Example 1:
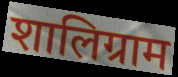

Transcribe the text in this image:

शालिग्राम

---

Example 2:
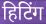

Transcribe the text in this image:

हिटिंग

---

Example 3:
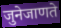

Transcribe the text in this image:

जुनेजाणते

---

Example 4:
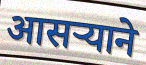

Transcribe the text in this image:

आसर्‍याने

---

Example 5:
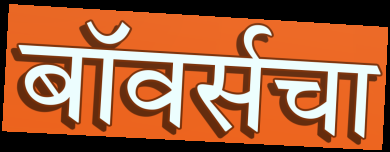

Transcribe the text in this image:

बॉवर्सचा